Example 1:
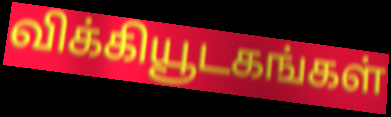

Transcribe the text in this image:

விக்கியூடகங்கள்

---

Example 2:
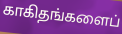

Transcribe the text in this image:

காகிதங்களைப்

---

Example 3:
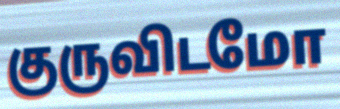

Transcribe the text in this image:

குருவிடமோ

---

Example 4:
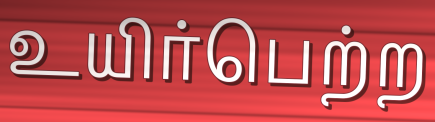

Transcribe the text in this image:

உயிர்பெற்ற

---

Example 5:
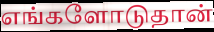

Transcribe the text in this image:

எங்களோடுதான்